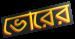
ভোরের